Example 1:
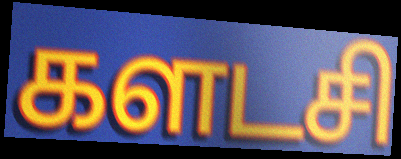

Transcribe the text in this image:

களடசி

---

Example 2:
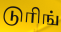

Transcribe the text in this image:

டுரிங்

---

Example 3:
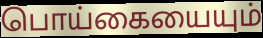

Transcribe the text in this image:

பொய்கையையும்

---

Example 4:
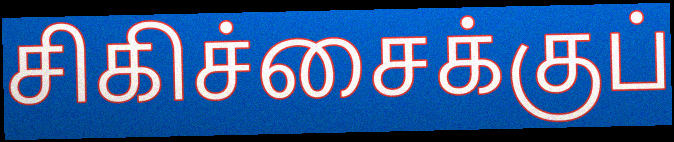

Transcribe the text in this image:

சிகிச்சைக்குப்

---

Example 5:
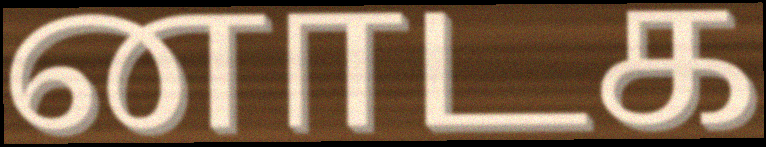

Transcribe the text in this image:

னாடக